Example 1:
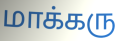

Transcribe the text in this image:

மாக்கரு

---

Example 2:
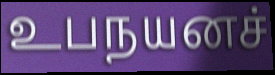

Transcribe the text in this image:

உபநயனச்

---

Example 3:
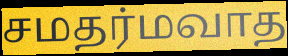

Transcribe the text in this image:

சமதர்மவாத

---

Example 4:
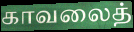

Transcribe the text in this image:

காவலைத்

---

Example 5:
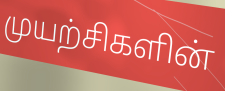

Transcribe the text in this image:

முயற்சிகளின்